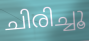
ചിരിച്ചൂ